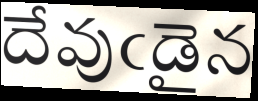
దేవుఁడైన